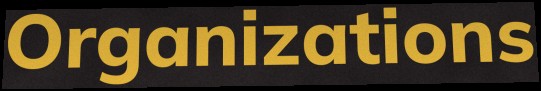
Organizations